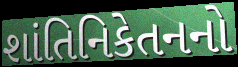
શાંતિનિકેતનનો